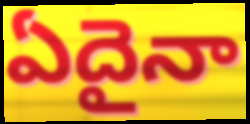
ఏదైనా